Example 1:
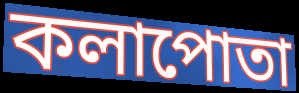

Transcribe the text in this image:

কলাপোতা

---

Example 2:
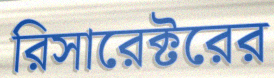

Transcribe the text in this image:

রিসারেক্টরের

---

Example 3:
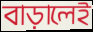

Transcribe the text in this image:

বাড়ালেই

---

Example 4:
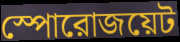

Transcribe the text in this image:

স্পোরোজয়েট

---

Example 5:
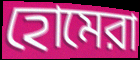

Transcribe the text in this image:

হোমেরা